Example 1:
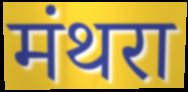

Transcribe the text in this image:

मंथरा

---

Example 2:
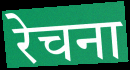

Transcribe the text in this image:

रेचना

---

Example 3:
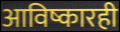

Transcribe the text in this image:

आविष्कारही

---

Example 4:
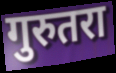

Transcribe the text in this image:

गुरुतरा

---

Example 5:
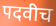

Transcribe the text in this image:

पदवीच